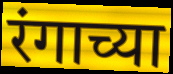
रंगाच्या